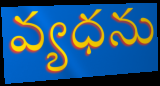
వ్యధను